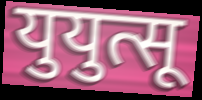
युयुत्सू